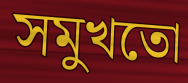
সমুখতো